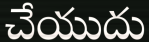
చేయుదు